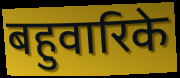
बहुवारिके